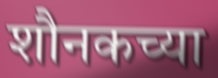
शौनकच्या